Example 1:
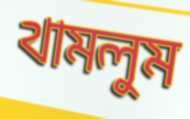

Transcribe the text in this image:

থামলুম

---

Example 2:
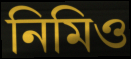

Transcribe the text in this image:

নিমিও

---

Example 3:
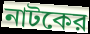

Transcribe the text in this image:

নাটকের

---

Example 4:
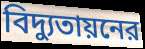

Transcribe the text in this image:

বিদ্যুতায়নের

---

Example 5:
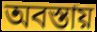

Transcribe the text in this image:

অবস্তায়